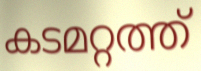
കടമറ്റത്ത്